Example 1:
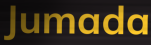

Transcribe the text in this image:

Jumada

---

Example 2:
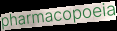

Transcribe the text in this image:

pharmacopoeia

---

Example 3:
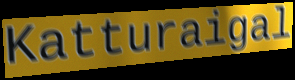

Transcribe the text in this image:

Katturaigal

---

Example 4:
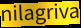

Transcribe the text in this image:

nilagriva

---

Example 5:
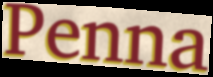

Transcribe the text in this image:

Penna